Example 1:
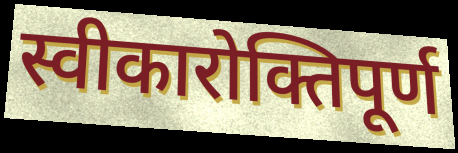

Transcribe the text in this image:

स्वीकारोक्तिपूर्ण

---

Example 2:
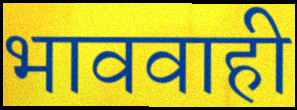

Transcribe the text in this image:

भाववाही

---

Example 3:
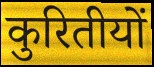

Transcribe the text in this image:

कुरितीयों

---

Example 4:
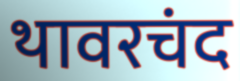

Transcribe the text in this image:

थावरचंद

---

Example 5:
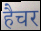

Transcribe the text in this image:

हैचर